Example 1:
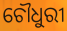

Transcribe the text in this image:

ଚୌଧୁରୀ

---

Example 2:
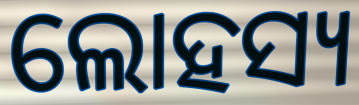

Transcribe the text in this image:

ଲୋହସ୍ୟ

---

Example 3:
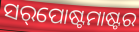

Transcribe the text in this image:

ସର୍‌ପୋଷ୍ଟମାଷ୍ଟର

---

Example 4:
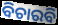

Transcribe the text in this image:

ବିଚାରବି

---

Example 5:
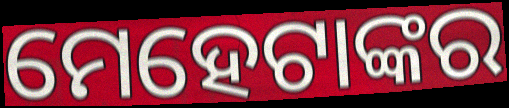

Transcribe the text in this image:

ମେହେଟାଙ୍କର